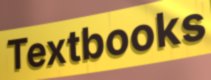
Textbooks